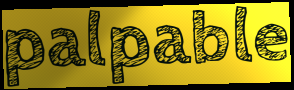
palpable